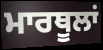
ਮਾਰਥੂਲਾਂ